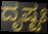
ದೃಷ್ಟಃ